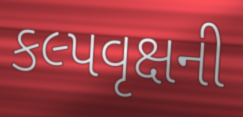
કલ્પવૃક્ષની